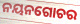
ନୟନଗୋଚର